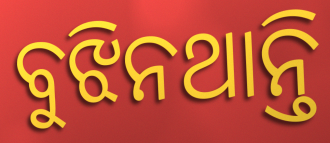
ବୁଝିନଥାନ୍ତି